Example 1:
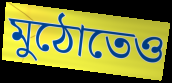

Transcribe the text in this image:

মুঠোতেও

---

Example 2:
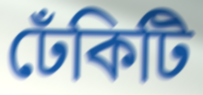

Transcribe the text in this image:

ঢেঁকিটি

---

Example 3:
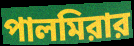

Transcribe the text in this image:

পালমিরার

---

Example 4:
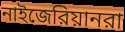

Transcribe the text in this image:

নাইজেরিয়ানরা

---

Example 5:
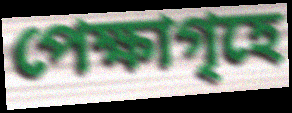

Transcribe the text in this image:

পেক্ষাগৃহে